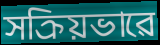
সক্ৰিয়ভাৱে